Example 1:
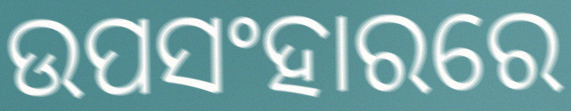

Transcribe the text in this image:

ଉପସଂହାରରେ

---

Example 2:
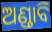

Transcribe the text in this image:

ଅଣ୍ଡାବି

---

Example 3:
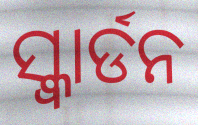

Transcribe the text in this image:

ସ୍କ୍ବାର୍ଡନ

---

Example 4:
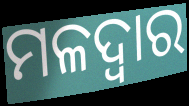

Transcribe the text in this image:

ମଳଦ୍ୱାର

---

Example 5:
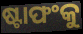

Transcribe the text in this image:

ଷ୍ଟାଫଂକୁ